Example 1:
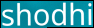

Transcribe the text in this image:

shodhi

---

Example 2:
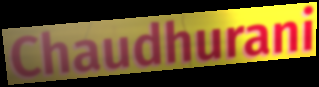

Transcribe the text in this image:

Chaudhurani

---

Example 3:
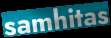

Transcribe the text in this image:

samhitas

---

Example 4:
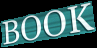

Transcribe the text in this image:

BOOK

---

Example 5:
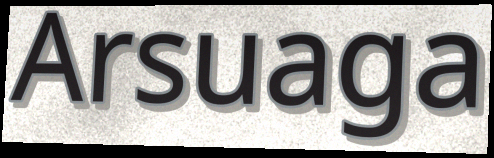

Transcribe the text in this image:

Arsuaga